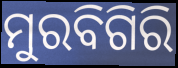
ମୁରବିଗିରି